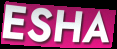
ESHA